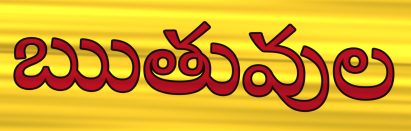
ఋతువుల